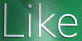
Like